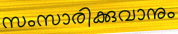
സംസാരിക്കുവാനും